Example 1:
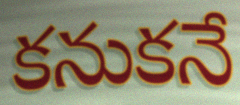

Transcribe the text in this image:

కనుకనే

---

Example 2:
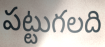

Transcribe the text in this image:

పట్టుగలది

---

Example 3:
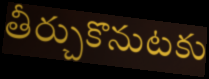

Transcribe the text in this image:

తీర్చుకొనుటకు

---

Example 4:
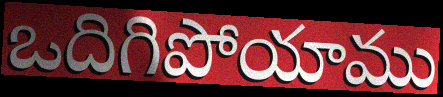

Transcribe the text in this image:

ఒదిగిపోయాము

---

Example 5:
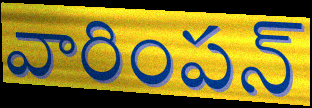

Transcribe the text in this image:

వారింపన్